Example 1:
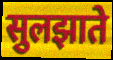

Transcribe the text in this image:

सुलझाते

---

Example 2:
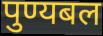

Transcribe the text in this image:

पुण्यबल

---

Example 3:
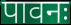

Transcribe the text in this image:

पावनः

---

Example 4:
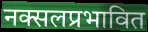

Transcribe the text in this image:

नक्सलप्रभावित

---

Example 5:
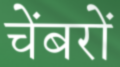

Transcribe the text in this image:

चेंबरों